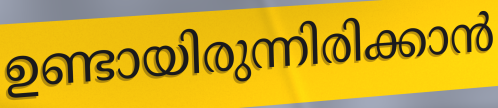
ഉണ്ടായിരുന്നിരിക്കാൻ